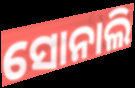
ସୋନାଲି